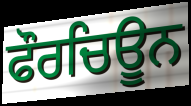
ਫੌਰਚਿਊਨ